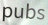
pubs